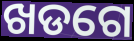
ଖଡଗେ